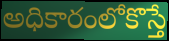
అధికారంలోకొస్తే